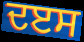
ਦੲਸ